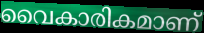
വൈകാരികമാണ്